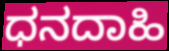
ಧನದಾಹಿ